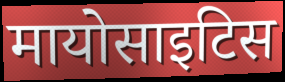
मायोसाइटिस